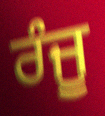
ਰੰਜੂ